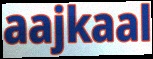
aajkaal